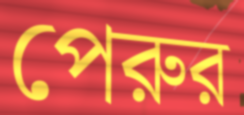
পেরুর